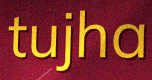
tujha